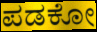
ಪಡಕೋ